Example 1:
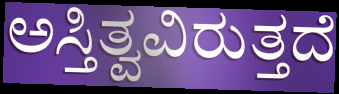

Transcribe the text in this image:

ಅಸ್ತಿತ್ವವಿರುತ್ತದೆ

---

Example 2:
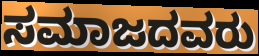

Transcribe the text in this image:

ಸಮಾಜದವರು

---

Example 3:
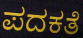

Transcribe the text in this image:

ಪದಕತೆ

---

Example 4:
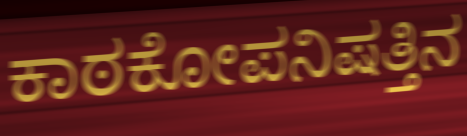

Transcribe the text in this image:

ಕಾಠಕೋಪನಿಷತ್ತಿನ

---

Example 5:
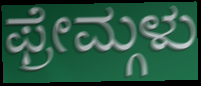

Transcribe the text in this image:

ಫ್ರೇಮ್ಗಳು